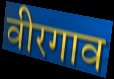
वीरगाव